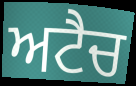
ਅਟੈਚ